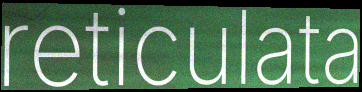
reticulata